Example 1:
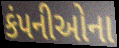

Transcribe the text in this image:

કંપનીઓના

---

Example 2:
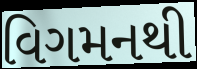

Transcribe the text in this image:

વિગમનથી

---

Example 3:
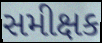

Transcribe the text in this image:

સમીક્ષક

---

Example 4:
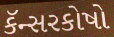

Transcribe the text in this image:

કૅન્સરકોષો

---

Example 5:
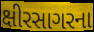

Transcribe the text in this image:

ક્ષીરસાગરના